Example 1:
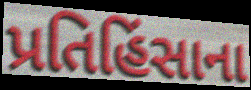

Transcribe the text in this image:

પ્રતિહિંસાના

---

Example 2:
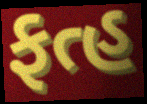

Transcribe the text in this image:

ફત્હ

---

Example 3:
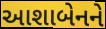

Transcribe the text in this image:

આશાબેનને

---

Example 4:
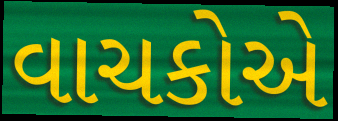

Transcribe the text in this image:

વાચકોએ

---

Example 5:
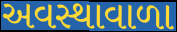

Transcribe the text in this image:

અવસ્થાવાળા